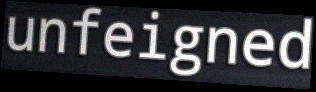
unfeigned